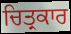
ਚਿਤ੍ਰਕਾਰ